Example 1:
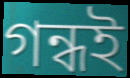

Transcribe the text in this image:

গন্ধই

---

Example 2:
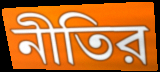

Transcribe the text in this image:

নীতির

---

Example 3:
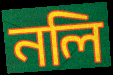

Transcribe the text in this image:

নলি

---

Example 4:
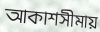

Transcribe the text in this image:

আকাশসীমায়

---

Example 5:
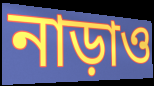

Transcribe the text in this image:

নাড়াও